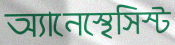
অ্যানেস্থেসিস্ট